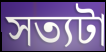
সত্যটা